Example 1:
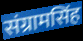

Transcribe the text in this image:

संग्रामसिंह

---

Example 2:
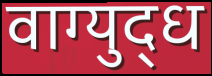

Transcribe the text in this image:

वाग्युद्ध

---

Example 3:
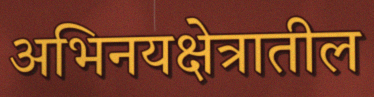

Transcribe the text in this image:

अभिनयक्षेत्रातील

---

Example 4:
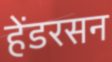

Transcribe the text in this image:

हेंडरसन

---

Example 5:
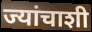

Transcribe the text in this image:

ज्यांचाशी